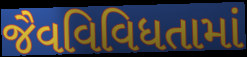
જૈવવિવિધતામાં